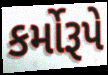
કર્મોરૂપે